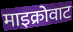
माइक्रोवाट